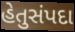
હેતુસંપદા